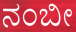
ನಂಬೀ